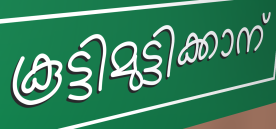
കൂട്ടിമുട്ടിക്കാന്